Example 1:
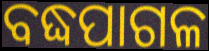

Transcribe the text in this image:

ବଦ୍ଧପାଗଳ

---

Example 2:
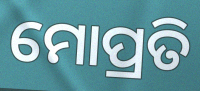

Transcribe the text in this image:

ମୋପ୍ରତି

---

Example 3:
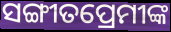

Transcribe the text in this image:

ସଙ୍ଗୀତପ୍ରେମୀଙ୍କ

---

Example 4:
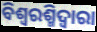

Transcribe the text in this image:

ବିଶ୍ୱରଶ୍ମିଦ୍ୱାରା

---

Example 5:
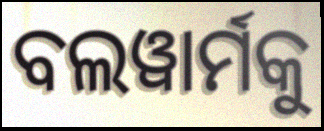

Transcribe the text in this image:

ବଲୱାର୍ମକୁ